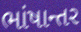
ભાંષાન્તર